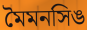
মৈমনসিঙ